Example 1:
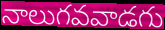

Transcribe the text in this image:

నాలుగవవాడగు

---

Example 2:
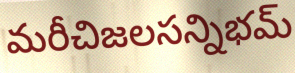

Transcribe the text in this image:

మరీచిజలసన్నిభమ్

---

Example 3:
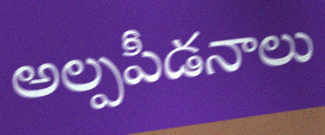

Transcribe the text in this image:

అల్పపీడనాలు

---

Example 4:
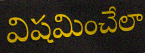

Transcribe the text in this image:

విషమించేలా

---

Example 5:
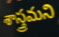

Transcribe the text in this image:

శాస్త్రమని